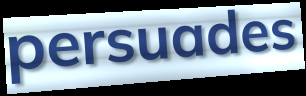
persuades